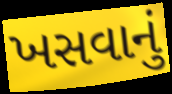
ખસવાનું